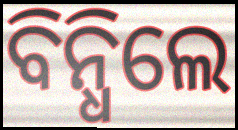
ବିନ୍ଧିଲେ